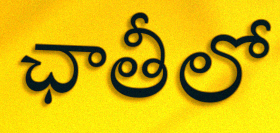
ఛాతీలో